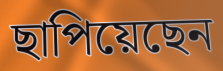
ছাপিয়েছেন